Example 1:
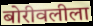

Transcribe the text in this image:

बोरीवलीला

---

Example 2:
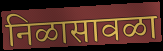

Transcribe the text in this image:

निळासावळा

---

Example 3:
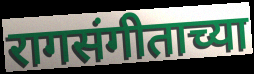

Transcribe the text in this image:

रागसंगीताच्या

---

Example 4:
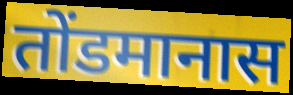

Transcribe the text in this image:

तोंडमानास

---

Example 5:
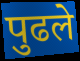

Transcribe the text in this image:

पुढले